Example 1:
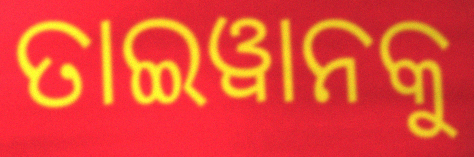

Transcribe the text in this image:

ତାଇୱାନକୁ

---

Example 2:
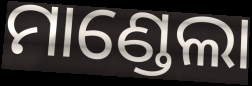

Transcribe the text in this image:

ମାଣ୍ଡେଲା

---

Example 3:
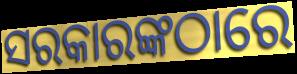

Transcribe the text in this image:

ସରକାରଙ୍କଠାରେ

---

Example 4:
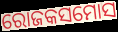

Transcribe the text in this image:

ରୋଜକସମୋସ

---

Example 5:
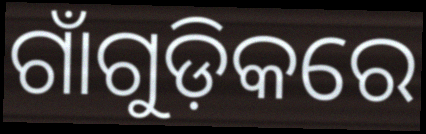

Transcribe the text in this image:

ଗାଁଗୁଡ଼ିକରେ